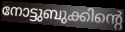
നോട്ടുബുക്കിന്റെ